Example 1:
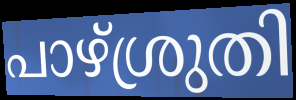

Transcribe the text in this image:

പാഴ്ശ്രുതി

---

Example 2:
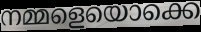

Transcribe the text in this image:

നമ്മളെയൊക്കെ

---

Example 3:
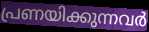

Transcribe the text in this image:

പ്രണയിക്കുന്നവർ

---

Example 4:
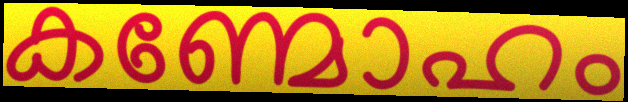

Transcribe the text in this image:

കണ്മോഹം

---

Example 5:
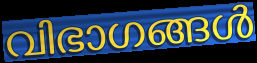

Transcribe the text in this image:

വിഭാഗങ്ങൾ